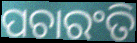
ପଚାରଂତି